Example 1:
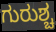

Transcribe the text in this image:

ಗುರುಶ್ಚ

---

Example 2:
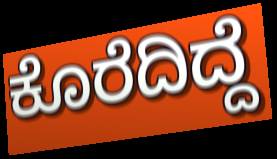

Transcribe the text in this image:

ಕೊರೆದಿದ್ದೆ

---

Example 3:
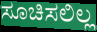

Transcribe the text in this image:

ಸೂಚಿಸಲಿಲ್ಲ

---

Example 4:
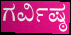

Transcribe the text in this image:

ಗರ್ವಿಷ್ಠ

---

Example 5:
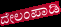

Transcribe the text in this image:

ದೇಲಂಪಾಡಿ